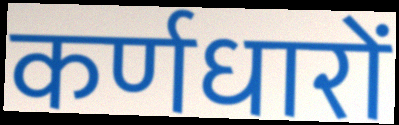
कर्णधारों